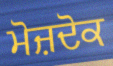
ਮੋਜ਼ਦੋਕ